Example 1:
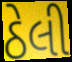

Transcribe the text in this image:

ઠેલી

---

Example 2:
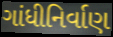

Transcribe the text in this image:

ગાંધીનિર્વાણ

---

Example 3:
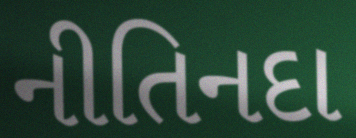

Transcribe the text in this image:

નીતિનદા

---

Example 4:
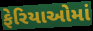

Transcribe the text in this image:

ફેરિયાઓમાં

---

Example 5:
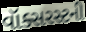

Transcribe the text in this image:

વૉક્સરસ્ટની